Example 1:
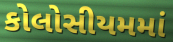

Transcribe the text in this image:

કોલોસીયમમાં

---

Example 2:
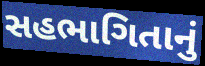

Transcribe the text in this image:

સહભાગિતાનું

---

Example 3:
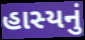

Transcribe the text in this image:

હાસ્યનું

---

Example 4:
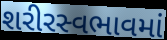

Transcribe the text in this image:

શરીરસ્વભાવમાં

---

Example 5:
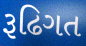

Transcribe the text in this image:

રૂઢિગત